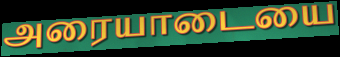
அரையாடையை